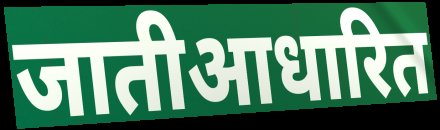
जातीआधारित